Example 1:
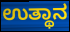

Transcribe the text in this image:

ಉತ್ಥಾನ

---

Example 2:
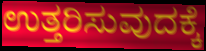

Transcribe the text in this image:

ಉತ್ತರಿಸುವುದಕ್ಕೆ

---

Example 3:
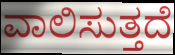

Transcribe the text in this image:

ವಾಲಿಸುತ್ತದೆ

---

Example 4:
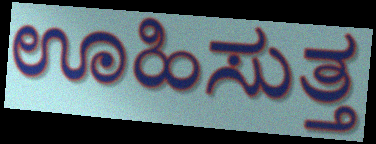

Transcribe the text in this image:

ಊಹಿಸುತ್ತ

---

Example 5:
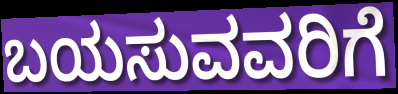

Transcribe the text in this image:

ಬಯಸುವವರಿಗೆ